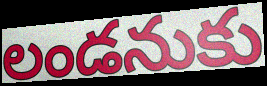
లండనుకు